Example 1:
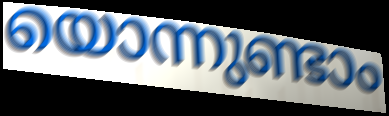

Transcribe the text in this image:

യൊന്നുണ്ടാം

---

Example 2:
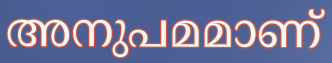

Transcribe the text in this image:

അനുപമമാണ്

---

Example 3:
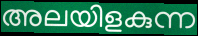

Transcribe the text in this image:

അലയിളകുന്ന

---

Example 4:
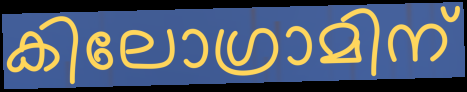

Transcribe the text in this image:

കിലോഗ്രാമിന്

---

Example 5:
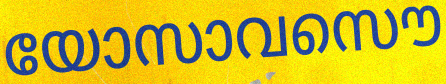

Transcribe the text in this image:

യോസാവസൌ